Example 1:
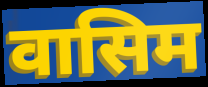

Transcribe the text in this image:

वासिम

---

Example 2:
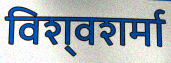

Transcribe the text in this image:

विश्वशर्मा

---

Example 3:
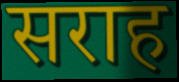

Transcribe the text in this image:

सराह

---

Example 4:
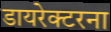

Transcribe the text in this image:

डायरेक्टरना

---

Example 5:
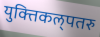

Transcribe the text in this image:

युक्तिकल्पतरु